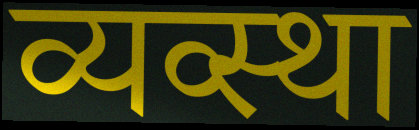
व्यव्स्था